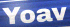
Yoav